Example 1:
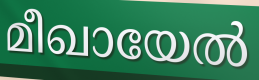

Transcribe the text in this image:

മീഖായേൽ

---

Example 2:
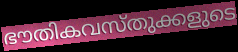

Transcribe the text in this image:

ഭൗതികവസ്തുക്കളുടെ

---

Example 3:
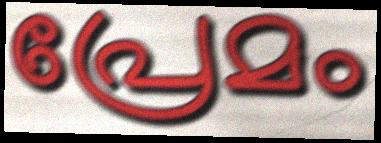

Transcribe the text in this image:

പ്രേമം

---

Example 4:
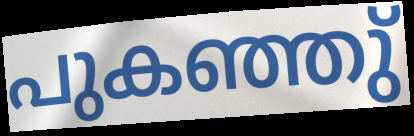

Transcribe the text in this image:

പുകഞ്ഞു്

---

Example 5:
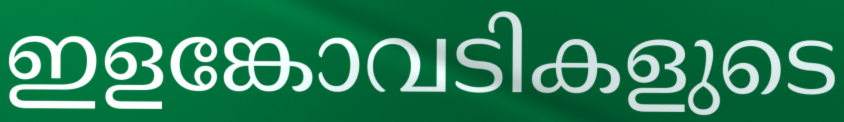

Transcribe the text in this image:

ഇളങ്കോവടികളുടെ